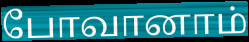
போவானாம்